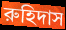
রুহিদাস